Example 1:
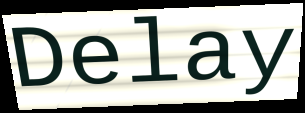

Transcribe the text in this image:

Delay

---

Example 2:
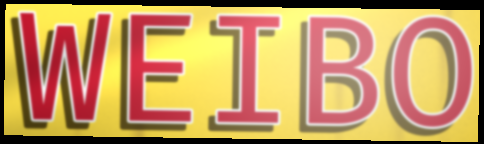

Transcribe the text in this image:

WEIBO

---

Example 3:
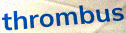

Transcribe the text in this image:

thrombus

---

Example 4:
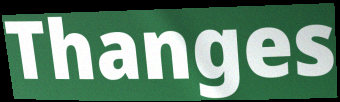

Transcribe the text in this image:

Thanges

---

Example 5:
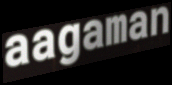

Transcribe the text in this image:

aagaman